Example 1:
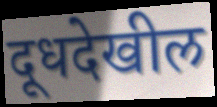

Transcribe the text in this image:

दूधदेखील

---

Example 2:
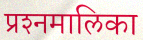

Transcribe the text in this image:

प्रश्नमालिका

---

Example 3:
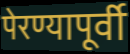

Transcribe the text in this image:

पेरण्यापूर्वी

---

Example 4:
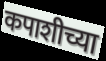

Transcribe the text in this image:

कपाशीच्या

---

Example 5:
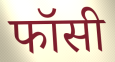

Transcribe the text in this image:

फॉसी